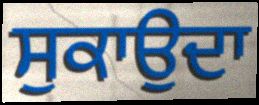
ਸੁਕਾਉਦਾ